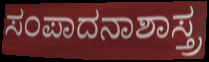
ಸಂಪಾದನಾಶಾಸ್ತ್ರ